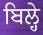
ਬਿਲ੍ਹੇ